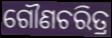
ଗୌଣଚରିତ୍ର